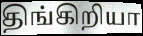
திங்கிறியா